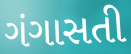
ગંગાસતી